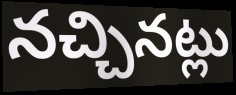
నచ్చినట్లు